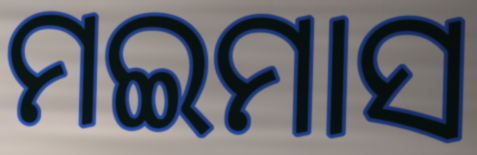
ମଇମାସ